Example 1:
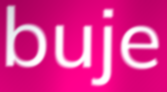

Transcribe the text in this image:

buje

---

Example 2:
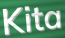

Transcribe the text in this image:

Kita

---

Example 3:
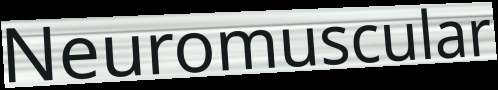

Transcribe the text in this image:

Neuromuscular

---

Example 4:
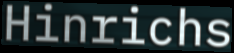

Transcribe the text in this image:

Hinrichs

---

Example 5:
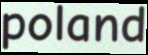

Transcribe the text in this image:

poland